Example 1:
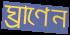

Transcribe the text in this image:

ঘ্রাণেন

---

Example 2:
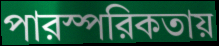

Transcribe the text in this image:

পারস্পরিকতায়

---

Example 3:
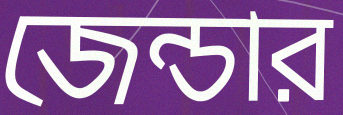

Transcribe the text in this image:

জেন্ডার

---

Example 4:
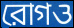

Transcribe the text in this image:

রোগও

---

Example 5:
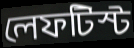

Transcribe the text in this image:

লেফটিস্ট